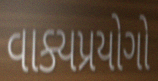
વાક્યપ્રયોગો